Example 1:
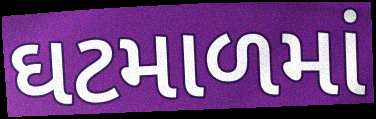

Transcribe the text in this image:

ઘટમાળમાં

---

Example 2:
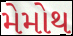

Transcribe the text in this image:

મેમોથ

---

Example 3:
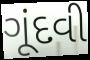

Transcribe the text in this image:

ગૂંદવી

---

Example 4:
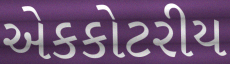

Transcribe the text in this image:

એકકોટરીય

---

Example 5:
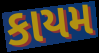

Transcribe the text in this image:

કાયમ